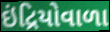
ઇંદ્રિયોવાળા